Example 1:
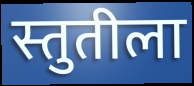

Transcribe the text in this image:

स्तुतीला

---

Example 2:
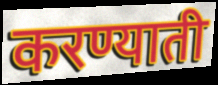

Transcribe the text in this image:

करण्याती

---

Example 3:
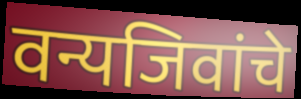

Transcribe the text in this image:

वन्यजिवांचे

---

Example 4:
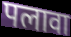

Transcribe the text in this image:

पलावा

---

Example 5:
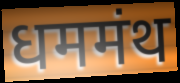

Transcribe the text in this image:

धममंथ